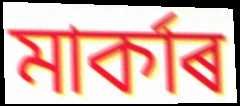
মাৰ্কাৰ